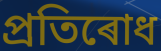
প্ৰতিৰোধ